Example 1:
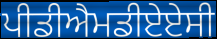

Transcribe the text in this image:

ਪੀਡੀਐਮਡੀਏਏਸੀ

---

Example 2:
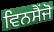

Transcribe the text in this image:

ਵਿਨਸੈਂਜੋ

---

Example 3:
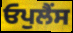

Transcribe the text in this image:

ਓਪੁਲੈਂਸ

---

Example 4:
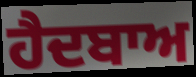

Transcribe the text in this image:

ਹੈਦਬਾਅ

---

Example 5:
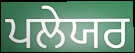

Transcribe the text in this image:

ਪਲੇਯਰ